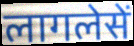
लागलेसें